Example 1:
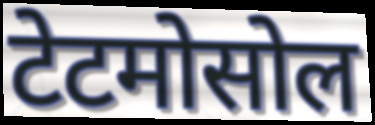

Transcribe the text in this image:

टेटमोसोल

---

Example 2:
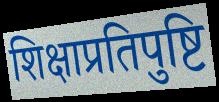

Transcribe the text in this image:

शिक्षाप्रतिपुष्टि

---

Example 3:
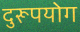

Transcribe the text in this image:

दुरूपयोग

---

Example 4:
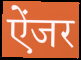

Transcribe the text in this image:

ऐंजर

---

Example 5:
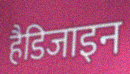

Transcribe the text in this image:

हैडिजाइन